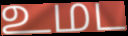
உமட